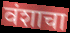
वंशाचा